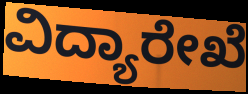
ವಿದ್ಯಾರೇಖೆ